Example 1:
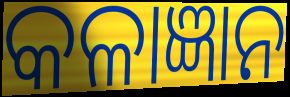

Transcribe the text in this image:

କଳାଜ୍ଞାନ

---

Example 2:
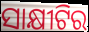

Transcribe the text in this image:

ସାକ୍ଷୀଟିର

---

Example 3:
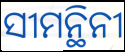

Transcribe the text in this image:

ସୀମନ୍ଥିନୀ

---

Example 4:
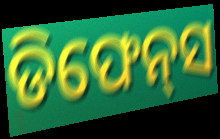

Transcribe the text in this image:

ଡିଫେନ୍‌ସ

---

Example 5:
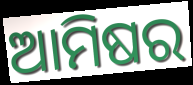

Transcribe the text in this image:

ଆମିଷର